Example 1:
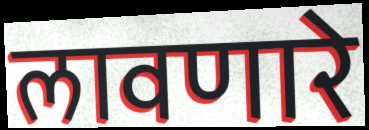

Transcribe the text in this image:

लावणारे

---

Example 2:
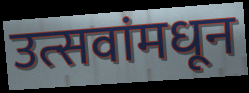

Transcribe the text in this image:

उत्सवांमधून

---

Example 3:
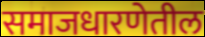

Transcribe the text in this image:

समाजधारणेतील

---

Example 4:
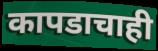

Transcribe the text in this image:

कापडाचाही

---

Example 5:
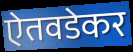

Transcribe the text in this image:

ऐतवडेकर